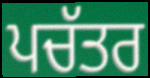
ਪਚੱਤਰ